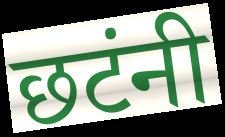
छटंनी